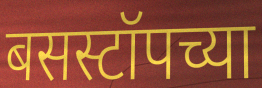
बसस्टॉपच्या